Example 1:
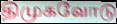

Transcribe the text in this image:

திமுகவோடு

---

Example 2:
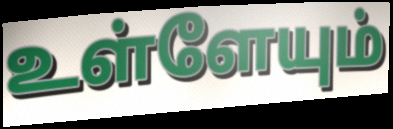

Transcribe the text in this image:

உள்ளேயும்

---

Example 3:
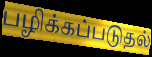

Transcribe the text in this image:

பழிக்கப்படுதல்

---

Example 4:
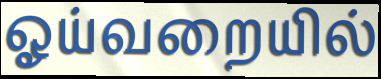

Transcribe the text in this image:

ஓய்வறையில்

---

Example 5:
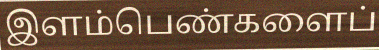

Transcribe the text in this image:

இளம்பெண்களைப்